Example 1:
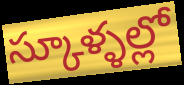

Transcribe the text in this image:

స్కూళ్ళల్లో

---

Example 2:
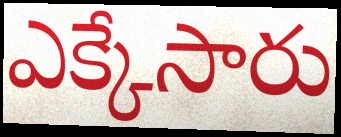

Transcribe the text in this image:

ఎక్కేసారు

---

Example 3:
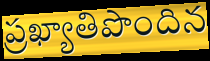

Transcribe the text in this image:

ప్రఖ్యాతిపొందిన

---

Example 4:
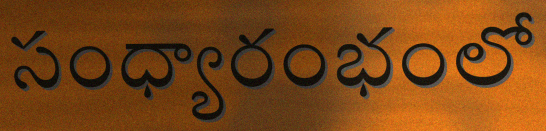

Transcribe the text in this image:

సంధ్యారంభంలో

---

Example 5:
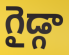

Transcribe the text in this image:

గైడ్గా